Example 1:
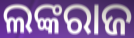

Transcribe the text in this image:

ଲଙ୍କରାଜ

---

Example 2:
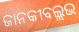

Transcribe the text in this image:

ଜାନକୀବଲ୍ଲଭ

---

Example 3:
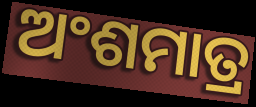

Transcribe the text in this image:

ଅଂଶମାତ୍ର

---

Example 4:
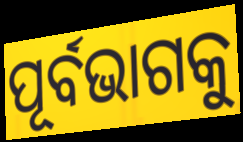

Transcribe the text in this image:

ପୂର୍ବଭାଗକୁ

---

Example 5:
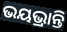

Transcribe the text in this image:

ଭୟଭ୍ରାନ୍ତି